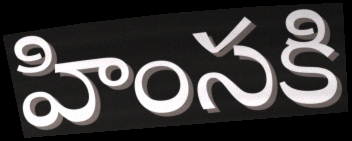
హింసకి